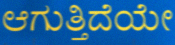
ಆಗುತ್ತಿದೆಯೇ